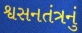
શ્વસનતંત્રનું